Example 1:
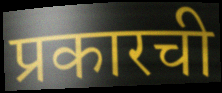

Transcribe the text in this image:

प्रकारची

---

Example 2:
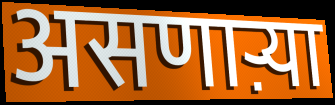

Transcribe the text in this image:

असणाऱ्‍या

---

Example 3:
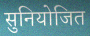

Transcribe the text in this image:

सुनियोजित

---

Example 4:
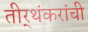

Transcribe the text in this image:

तीर्थंकरांची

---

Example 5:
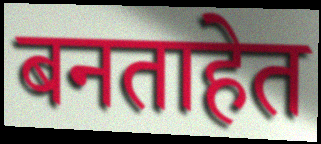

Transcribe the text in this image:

बनताहेत